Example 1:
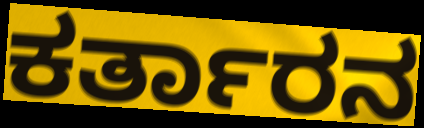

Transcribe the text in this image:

ಕರ್ತಾರನ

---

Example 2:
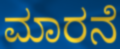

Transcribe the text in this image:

ಮಾರನೆ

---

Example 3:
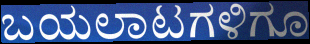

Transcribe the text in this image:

ಬಯಲಾಟಗಳಿಗೂ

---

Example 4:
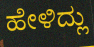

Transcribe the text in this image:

ಹೇಳಿದ್ಲು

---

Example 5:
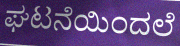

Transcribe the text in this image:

ಘಟನೆಯಿಂದಲೆ